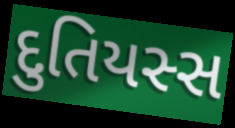
દુતિયસ્સ